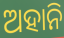
ଅହାନି